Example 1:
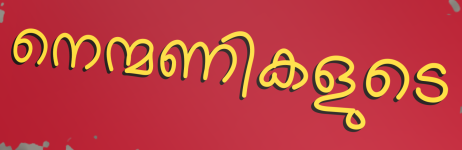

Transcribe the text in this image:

നെന്മണികളുടെ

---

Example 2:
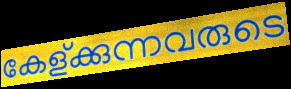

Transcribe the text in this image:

കേള്ക്കുന്നവരുടെ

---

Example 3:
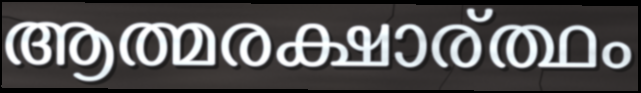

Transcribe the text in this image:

ആത്മരക്ഷാര്ത്ഥം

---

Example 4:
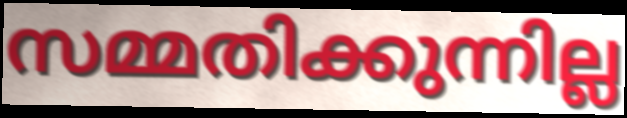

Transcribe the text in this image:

സമ്മതിക്കുന്നില്ല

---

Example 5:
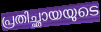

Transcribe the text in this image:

പ്രതിച്ഛായയുടെ